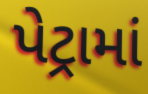
પેટ્રામાં